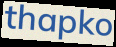
thapko